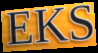
EKS